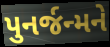
પુનર્જન્મને